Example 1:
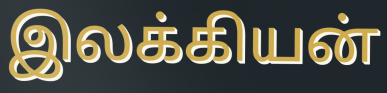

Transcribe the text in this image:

இலக்கியன்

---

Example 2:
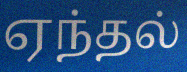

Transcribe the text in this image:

ஏந்தல்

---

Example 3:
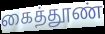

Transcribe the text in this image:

கைத்தூண்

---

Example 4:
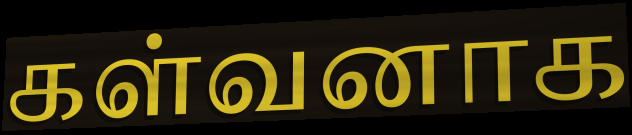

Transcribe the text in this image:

கள்வனாக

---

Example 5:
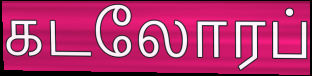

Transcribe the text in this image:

கடலோரப்